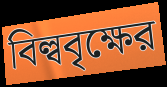
বিল্ববৃক্ষের